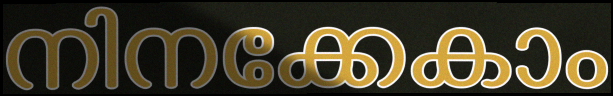
നിനക്കേകാം